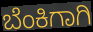
ಬೆಂಕಿಗಾಗಿ